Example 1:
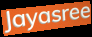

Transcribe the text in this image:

Jayasree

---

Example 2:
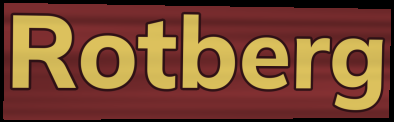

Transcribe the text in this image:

Rotberg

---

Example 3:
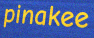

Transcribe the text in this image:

pinakee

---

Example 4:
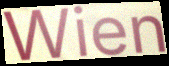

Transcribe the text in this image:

Wien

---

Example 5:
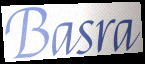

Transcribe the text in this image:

Basra